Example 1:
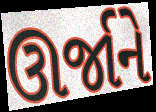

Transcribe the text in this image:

ઊર્જાને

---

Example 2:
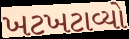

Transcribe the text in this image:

ખટખટાવ્યો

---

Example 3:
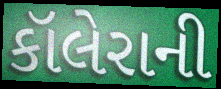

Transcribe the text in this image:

કૉલેરાની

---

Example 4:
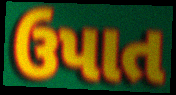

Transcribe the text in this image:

ઉપાત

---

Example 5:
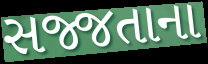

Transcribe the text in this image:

સજ્જતાના